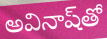
అవినాష్‌తో